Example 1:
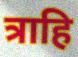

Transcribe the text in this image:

त्राहि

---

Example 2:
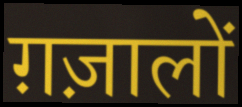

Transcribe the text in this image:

ग़ज़ालों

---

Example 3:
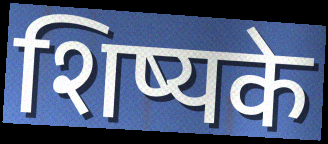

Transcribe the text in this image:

शिष्यके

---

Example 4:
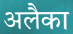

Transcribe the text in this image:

अलैका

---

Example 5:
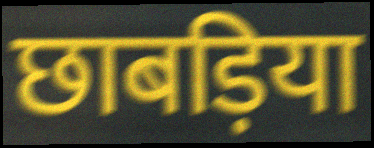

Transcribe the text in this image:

छाबड़िया